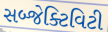
સબ્જેક્ટિવિટી